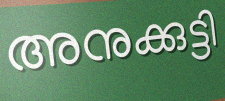
അനുക്കുട്ടി